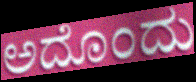
ಅದೊಂದು